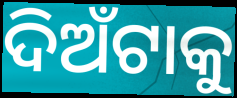
ଦିଅଁଟାକୁ